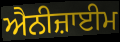
ਐਨੀਜ਼ਾਈਮ